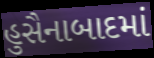
હુસૈનાબાદમાં